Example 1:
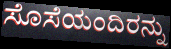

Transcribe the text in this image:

ಸೊಸೆಯಂದಿರನ್ನು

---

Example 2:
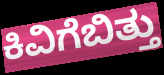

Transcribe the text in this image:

ಕಿವಿಗೆಬಿತ್ತು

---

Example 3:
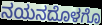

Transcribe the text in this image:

ನಯನದೊಳಗೊ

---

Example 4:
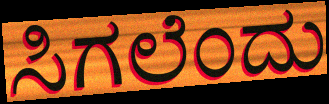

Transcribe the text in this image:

ಸಿಗಲೆಂದು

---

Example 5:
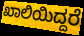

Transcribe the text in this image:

ಖಾಲಿಯಿದ್ದರೆ